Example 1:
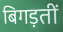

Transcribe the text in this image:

बिगड़तीं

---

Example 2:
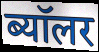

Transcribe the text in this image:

ब्यॉलर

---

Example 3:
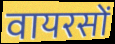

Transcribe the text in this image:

वायरसों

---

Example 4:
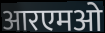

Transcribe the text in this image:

आरएमओ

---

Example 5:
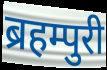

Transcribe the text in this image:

ब्रहम्पुरी